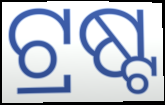
ଟ୍ରଷ୍ଟ